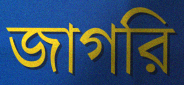
জাগরি